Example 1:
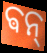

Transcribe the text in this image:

ଵନ୍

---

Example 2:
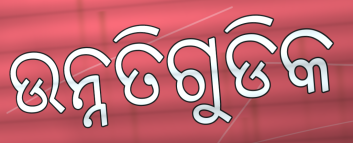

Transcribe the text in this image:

ଉନ୍ନତିଗୁଡିକ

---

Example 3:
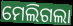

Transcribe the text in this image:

ମେଲିଗଲା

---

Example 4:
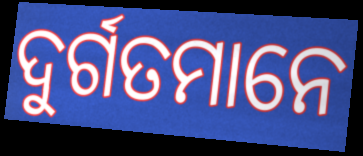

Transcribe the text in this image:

ଦୁର୍ଗତମାନେ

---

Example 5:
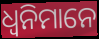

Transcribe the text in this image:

ଧ୍ୱନିମାନେ